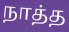
நாத்த